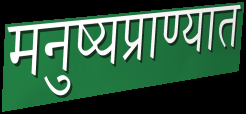
मनुष्यप्राण्यात